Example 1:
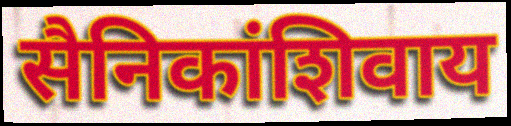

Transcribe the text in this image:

सैनिकांशिवाय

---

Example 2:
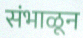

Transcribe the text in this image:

संभाळून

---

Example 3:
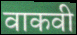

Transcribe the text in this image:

वाकवी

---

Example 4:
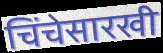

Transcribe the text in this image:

चिंचेसारखी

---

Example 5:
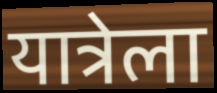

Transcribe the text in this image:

यात्रेला